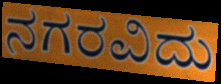
ನಗರವಿದು